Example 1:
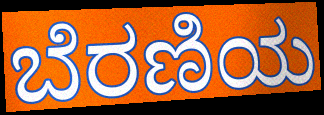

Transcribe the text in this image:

ಬೆರಣಿಯ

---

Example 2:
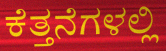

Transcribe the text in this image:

ಕೆತ್ತನೆಗಳಲ್ಲಿ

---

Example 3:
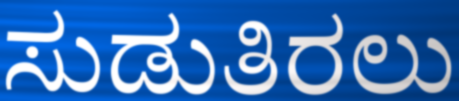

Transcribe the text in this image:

ಸುಡುತಿರಲು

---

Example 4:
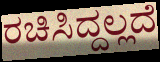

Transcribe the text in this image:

ರಚಿಸಿದ್ದಲ್ಲದೆ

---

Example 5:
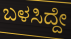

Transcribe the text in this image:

ಬಳಸಿದ್ದೇ